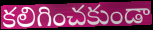
కలిగించకుండా